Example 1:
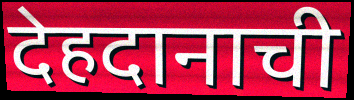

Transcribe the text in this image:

देहदानाची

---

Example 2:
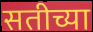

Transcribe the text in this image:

सतीच्या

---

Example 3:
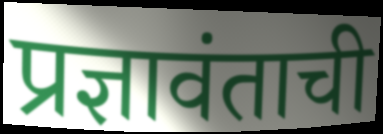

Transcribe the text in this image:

प्रज्ञावंताची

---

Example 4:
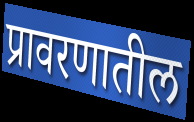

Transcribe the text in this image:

प्रावरणातील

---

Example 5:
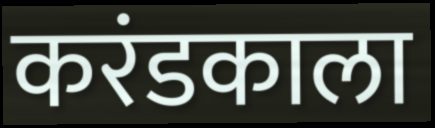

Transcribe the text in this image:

करंडकाला